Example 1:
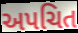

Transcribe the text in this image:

અપચિત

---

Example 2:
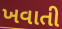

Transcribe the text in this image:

ખવાતી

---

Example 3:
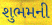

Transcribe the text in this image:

શુભમની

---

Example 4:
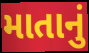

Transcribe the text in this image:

માતાનું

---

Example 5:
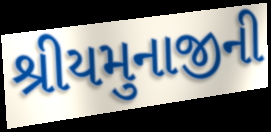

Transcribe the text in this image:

શ્રીયમુનાજીની